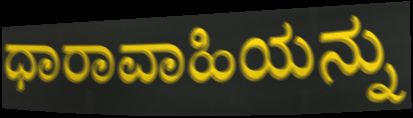
ಧಾರಾವಾಹಿಯನ್ನು